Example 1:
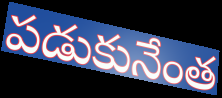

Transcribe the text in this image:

పడుకునేంత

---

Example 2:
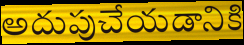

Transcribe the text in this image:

అదుపుచేయడానికి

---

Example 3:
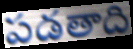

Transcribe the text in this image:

పడతాది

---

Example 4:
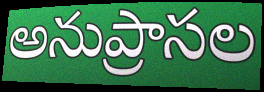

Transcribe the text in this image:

అనుప్రాసల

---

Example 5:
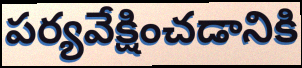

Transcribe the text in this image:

పర్యవేక్షించడానికి